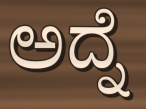
ಅದ್ನೆ